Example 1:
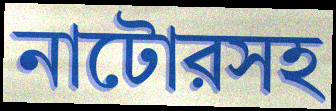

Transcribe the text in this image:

নাটোরসহ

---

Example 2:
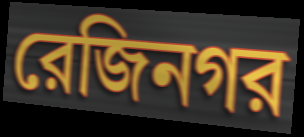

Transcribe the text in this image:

রেজিনগর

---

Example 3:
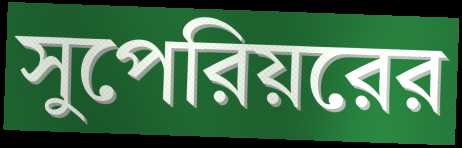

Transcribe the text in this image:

সুপেরিয়রের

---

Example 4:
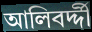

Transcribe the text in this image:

আলিবর্দ্দী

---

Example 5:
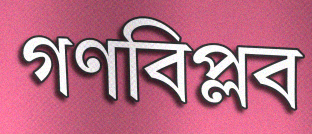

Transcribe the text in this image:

গণবিপ্লব